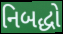
નિબદ્ધો